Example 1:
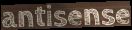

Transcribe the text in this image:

antisense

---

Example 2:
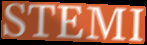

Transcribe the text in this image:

STEMI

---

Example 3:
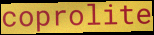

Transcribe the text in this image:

coprolite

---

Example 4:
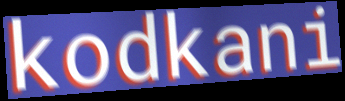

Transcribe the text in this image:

kodkani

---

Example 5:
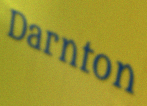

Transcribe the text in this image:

Darnton